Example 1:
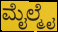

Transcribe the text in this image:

ಮೈಲ್ಮೈ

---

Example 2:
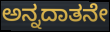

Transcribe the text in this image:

ಅನ್ನದಾತನೇ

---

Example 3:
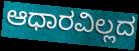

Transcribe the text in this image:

ಆಧಾರವಿಲ್ಲದ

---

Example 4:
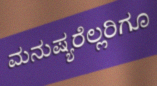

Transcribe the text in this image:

ಮನುಷ್ಯರೆಲ್ಲರಿಗೂ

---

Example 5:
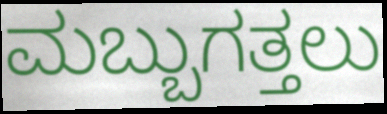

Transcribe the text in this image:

ಮಬ್ಬುಗತ್ತಲು